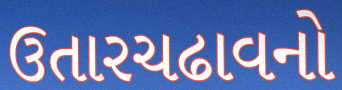
ઉતારચઢાવનો